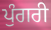
ਪੁੰਗਰੀ